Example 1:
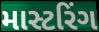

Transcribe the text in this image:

માસ્ટરિંગ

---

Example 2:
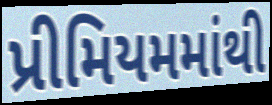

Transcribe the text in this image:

પ્રીમિયમમાંથી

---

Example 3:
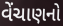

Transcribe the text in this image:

વેંચાણનો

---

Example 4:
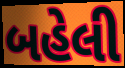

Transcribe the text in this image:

બહેલી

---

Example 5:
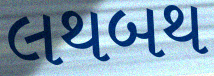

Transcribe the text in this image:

લથબથ